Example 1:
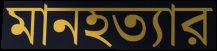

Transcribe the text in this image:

মানহত্যার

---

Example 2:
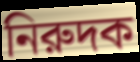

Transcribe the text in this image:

নিরুদক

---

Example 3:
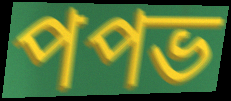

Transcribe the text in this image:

পপভ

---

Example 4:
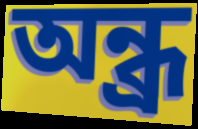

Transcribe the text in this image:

অন্ধ্র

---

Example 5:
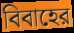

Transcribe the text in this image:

বিবাহের